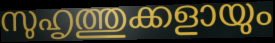
സുഹൃത്തുക്കളായും